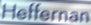
Heffernan